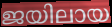
ജയിലായ